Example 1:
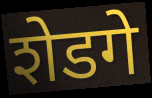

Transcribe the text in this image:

शेडगे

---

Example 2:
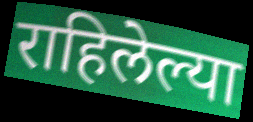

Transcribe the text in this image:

राहिलेल्या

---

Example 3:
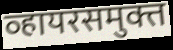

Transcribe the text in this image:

व्हायरसमुक्त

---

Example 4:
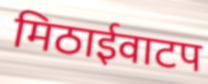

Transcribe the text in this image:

मिठाईवाटप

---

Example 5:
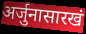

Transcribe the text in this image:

अर्जुनासारखं